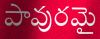
పావురమై